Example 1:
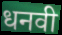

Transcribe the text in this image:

धनवी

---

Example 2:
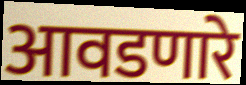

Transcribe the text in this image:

आवडणारे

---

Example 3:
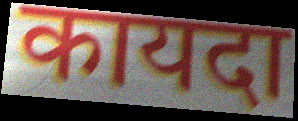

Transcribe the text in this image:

कायदा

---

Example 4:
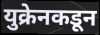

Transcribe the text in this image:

युक्रेनकडून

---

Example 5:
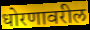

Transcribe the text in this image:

धोरणावरील